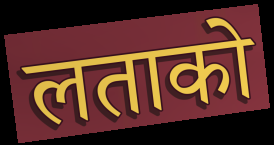
लताको